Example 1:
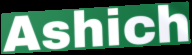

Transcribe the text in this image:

Ashich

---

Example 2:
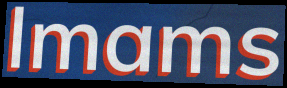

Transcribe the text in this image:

Imams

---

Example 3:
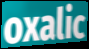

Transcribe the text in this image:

oxalic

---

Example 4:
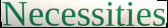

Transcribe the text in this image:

Necessities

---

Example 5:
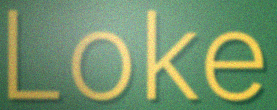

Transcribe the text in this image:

Loke